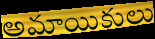
అమాయికులు